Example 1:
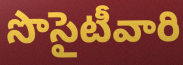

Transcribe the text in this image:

సొసైటీవారి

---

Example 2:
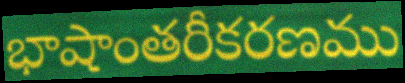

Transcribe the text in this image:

భాషాంతరీకరణము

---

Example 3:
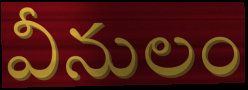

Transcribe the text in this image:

వీనులం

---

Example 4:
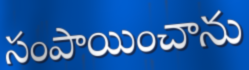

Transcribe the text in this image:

సంపాయించాను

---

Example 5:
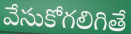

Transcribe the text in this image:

వేసుకోగలిగితే